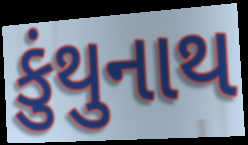
કુંથુનાથ